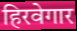
हिरवेगार